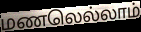
மணலெல்லாம்